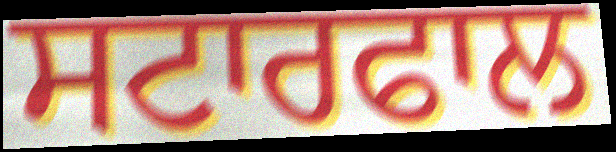
ਸਟਾਰਫਾਲ